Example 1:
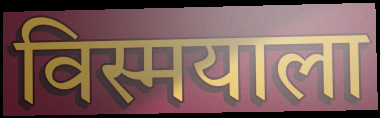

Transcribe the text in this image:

विस्मयाला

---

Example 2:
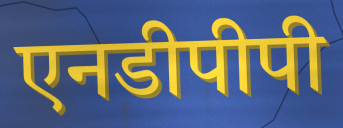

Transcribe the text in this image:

एनडीपीपी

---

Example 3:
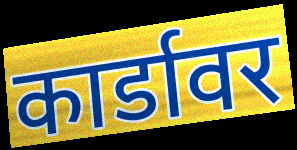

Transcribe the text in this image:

कार्डावर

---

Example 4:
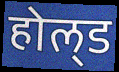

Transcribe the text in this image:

होल्ड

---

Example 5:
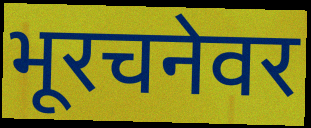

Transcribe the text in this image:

भूरचनेवर